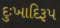
દુઃખાદિરૂપ